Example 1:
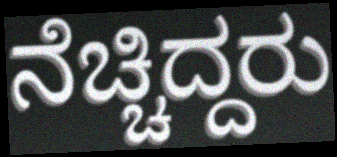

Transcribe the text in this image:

ನೆಚ್ಚಿದ್ದರು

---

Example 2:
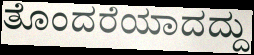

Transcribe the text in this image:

ತೊಂದರೆಯಾದದ್ದು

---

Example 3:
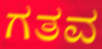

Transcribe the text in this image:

ಗತವ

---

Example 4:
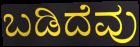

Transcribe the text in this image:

ಬಡಿದೆವು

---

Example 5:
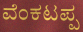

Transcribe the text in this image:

ವೆಂಕಟಪ್ಪ